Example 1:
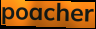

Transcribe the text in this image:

poacher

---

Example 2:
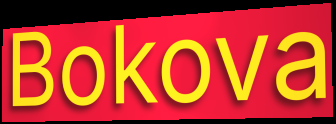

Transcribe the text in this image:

Bokova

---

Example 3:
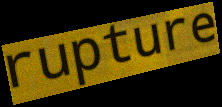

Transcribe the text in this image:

rupture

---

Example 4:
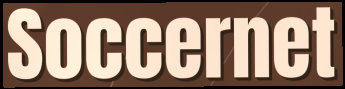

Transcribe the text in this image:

Soccernet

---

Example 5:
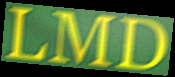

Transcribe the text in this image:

LMD